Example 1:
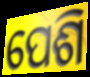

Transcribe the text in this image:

ପେଶି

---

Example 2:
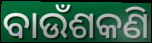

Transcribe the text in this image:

ବାଉଁଶକଣି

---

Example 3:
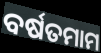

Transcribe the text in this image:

ବର୍ଷତମାମ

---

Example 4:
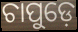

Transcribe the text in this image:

ଚାପୁଡ଼େ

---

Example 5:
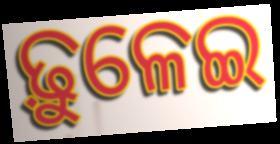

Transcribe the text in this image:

ଢ଼ୁଳେଇ